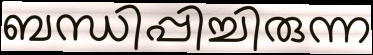
ബന്ധിപ്പിച്ചിരുന്ന